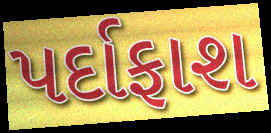
પર્દાફાશ